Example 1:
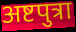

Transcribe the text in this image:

अष्टपुत्रा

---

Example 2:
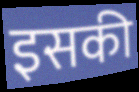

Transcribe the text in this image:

इसकी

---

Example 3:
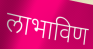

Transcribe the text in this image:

लाभाविण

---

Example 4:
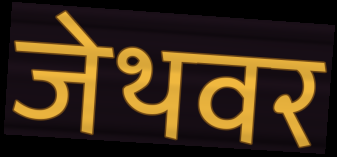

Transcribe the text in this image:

जेथवर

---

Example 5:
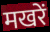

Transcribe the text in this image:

मखरें